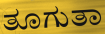
ತೂಗುತಾ